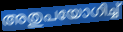
അതുപയോഗിച്ച്